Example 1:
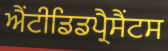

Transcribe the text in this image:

ਐਂਟੀਡਿਡਪ੍ਰੈਸੈਂਟਸ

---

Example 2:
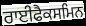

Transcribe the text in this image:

ਰਾਈਫੈਕਸਮਿਨ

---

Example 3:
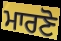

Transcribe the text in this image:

ਮਾਰਣੋ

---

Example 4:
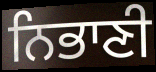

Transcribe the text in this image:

ਨਿਭਾਣੀ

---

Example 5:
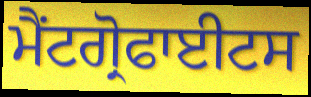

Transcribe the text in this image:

ਮੈਂਟਗ੍ਰੋਫਾਈਟਸ